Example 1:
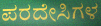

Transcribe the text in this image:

ಪರದೇಸಿಗಳ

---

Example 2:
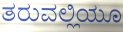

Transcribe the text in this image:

ತರುವಲ್ಲಿಯೂ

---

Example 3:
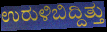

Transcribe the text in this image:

ಉರುಳಿಬಿದ್ದಿತ್ತು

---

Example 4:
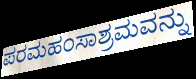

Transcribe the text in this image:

ಪರಮಹಂಸಾಶ್ರಮವನ್ನು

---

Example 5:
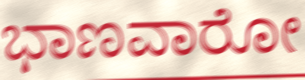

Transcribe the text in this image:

ಭಾಣವಾರೋ